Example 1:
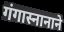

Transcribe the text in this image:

गंगास्नानाने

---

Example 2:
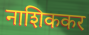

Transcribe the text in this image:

नाशिककर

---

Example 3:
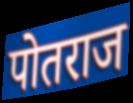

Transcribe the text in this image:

पोतराज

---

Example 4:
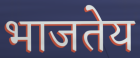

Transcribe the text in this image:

भाजतेय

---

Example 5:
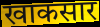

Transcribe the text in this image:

खाकसार